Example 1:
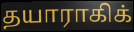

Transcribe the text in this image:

தயாராகிக்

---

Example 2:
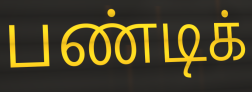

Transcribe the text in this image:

பண்டிக்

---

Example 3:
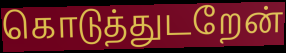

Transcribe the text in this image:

கொடுத்துடறேன்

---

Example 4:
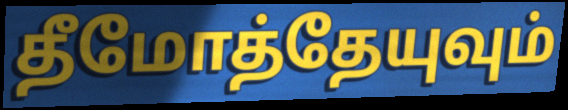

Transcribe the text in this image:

தீமோத்தேயுவும்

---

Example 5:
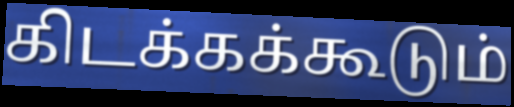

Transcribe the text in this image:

கிடக்கக்கூடும்